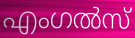
എംഗൽസ്